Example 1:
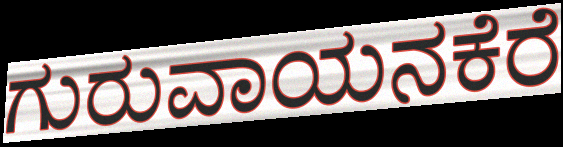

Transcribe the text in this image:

ಗುರುವಾಯನಕೆರೆ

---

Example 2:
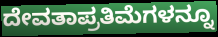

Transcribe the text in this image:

ದೇವತಾಪ್ರತಿಮೆಗಳನ್ನೂ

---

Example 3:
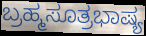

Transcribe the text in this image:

ಬ್ರಹ್ಮಸೂತ್ರಭಾಷ್ಯ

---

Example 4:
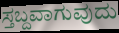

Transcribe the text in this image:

ಸ್ತಬ್ದವಾಗುವುದು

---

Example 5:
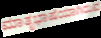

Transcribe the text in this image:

ಮಾತೃಭಾಷೆಯಾಗಿರುವ